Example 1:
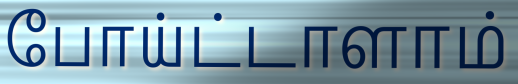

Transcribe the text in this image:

போய்ட்டாளாம்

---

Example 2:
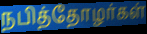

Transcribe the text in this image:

நபித்தோழர்கள்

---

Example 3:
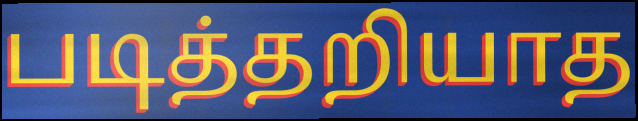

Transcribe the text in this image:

படித்தறியாத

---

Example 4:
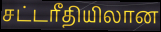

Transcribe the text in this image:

சட்டரீதியிலான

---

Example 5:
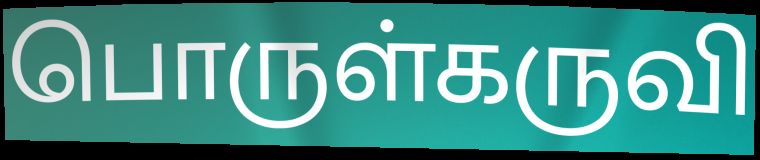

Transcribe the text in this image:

பொருள்கருவி